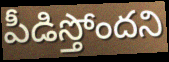
పీడిస్తోందని